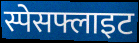
स्पेसफ्लाइट